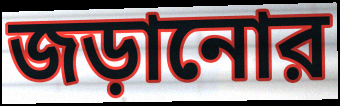
জড়ানোর